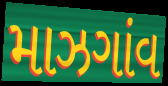
માઝગાંવ